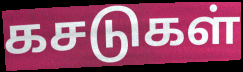
கசடுகள்